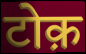
टोक़